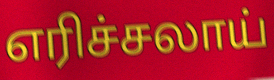
எரிச்சலாய்